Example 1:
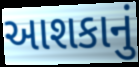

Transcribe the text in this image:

આશકાનું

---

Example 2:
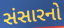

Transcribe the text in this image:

સંસારનો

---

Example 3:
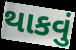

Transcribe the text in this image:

થાકવું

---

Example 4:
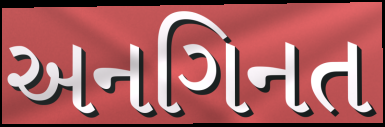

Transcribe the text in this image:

અનગિનત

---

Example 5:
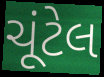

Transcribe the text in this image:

ચૂંટેલ